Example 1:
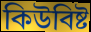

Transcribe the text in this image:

কিউবিষ্ট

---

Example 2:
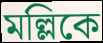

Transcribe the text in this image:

মল্লিকে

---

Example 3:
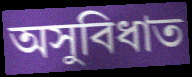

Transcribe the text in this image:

অসুবিধাত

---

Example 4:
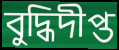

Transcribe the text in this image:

বুদ্ধিদীপ্ত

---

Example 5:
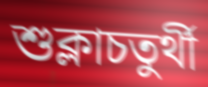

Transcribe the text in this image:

শুক্লাচতুৰ্থী